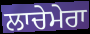
ਲਾਚੇਮੇਰਾ